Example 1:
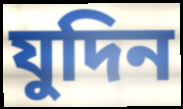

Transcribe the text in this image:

যুদিন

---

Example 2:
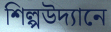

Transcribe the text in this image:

শিল্পউদ্যানে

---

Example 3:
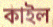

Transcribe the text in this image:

কাইল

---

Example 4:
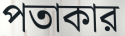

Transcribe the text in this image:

পতাকার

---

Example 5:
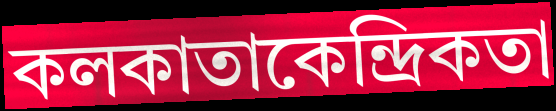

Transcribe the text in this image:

কলকাতাকেন্দ্রিকতা